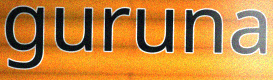
guruna